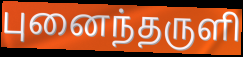
புனைந்தருளி